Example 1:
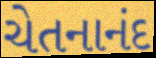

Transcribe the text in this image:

ચેતનાનંદ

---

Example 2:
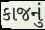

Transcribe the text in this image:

કાજનું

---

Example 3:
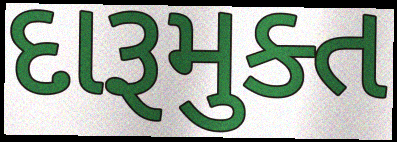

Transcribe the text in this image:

દારૂમુક્ત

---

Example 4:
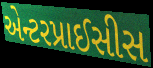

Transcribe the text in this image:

એન્ટરપ્રાઈસીસ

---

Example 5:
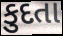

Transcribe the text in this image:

કુદતા